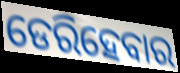
ଡେରିହେବାର